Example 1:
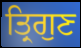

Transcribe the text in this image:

ਤ੍ਰਿਗੁਣ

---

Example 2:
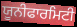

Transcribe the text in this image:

ਯੂਨੀਫਾਰਮਿਟੀ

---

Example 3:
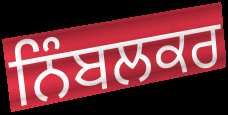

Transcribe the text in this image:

ਨਿੰਬਲਕਰ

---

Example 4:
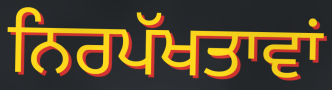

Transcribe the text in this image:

ਨਿਰਪੱਖਤਾਵਾਂ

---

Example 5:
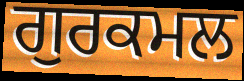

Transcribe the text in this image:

ਗੁਰਕਮਲ